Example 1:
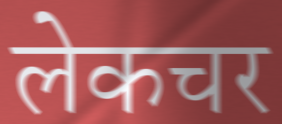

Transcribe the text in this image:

लेकचर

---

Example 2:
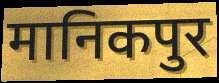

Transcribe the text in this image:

मानिकपुर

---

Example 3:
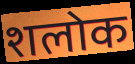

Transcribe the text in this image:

शलोक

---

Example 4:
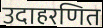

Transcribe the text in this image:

उदाहरणित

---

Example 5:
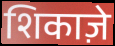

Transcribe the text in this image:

शिकाज़े